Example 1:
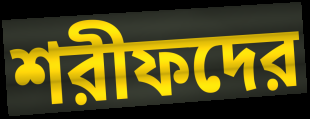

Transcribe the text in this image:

শরীফদের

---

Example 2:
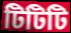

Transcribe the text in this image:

টিটিটি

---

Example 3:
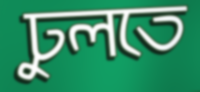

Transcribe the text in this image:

ঢুলতে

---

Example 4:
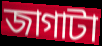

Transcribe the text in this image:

জাগাটা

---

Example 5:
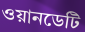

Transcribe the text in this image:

ওয়ানডেটি